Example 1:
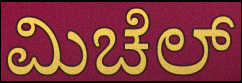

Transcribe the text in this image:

ಮಿಚೆಲ್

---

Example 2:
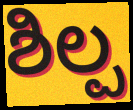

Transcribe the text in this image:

ಶಿಲ್ಪ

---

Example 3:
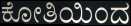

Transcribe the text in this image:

ಕೋತಿಯಿಂದ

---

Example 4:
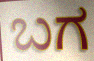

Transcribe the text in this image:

ಬಗ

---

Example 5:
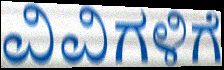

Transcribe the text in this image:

ವಿವಿಗಳಿಗೆ